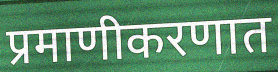
प्रमाणीकरणात